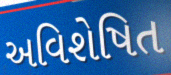
અવિશેષિત